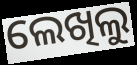
ଲେଖିଲୁ